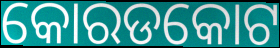
କୋରଡକୋଟ